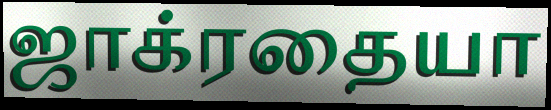
ஜாக்ரதையா